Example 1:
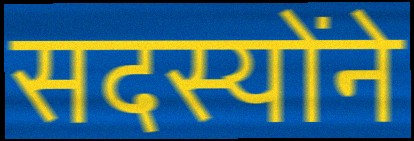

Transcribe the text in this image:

सदस्योंने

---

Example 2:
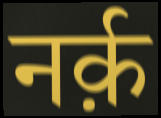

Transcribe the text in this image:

नर्क़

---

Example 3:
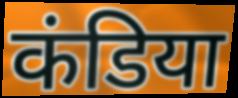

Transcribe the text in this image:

कंडिया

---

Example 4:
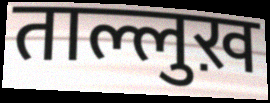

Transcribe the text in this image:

ताल्लुख़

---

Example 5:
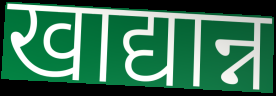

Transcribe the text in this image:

खाद्यान्न